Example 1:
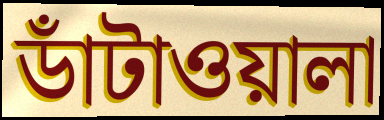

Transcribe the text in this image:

ডাঁটাওয়ালা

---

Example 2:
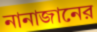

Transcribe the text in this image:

নানাজানের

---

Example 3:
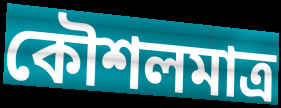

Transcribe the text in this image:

কৌশলমাত্র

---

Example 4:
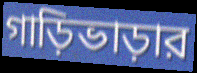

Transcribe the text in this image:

গাড়িভাড়ার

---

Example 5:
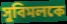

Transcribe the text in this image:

সুবিমলকে